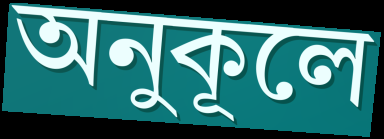
অনুকূলে